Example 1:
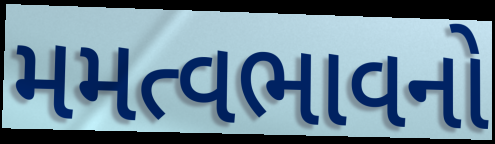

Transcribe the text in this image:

મમત્વભાવનો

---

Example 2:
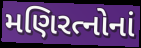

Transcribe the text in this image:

મણિરત્નોનાં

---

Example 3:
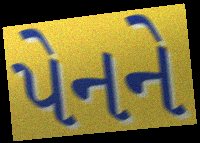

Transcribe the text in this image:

પેનને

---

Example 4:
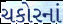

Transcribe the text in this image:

ચકોરનાં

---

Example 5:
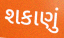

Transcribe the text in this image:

શકાણું